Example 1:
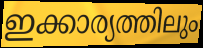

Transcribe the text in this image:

ഇക്കാര്യത്തിലും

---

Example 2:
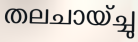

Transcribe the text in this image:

തലചായ്ച്ചു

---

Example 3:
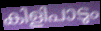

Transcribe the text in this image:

കിളിപാടും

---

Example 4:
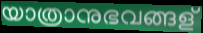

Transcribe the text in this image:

യാത്രാനുഭവങ്ങള്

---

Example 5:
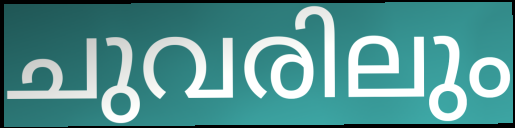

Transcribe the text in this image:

ചുവരിലും